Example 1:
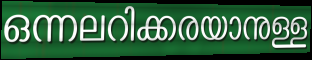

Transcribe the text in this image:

ഒന്നലറിക്കരയാനുള്ള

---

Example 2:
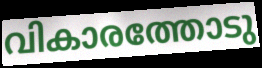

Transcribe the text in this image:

വികാരത്തോടു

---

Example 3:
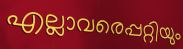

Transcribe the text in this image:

എല്ലാവരെപ്പറ്റിയും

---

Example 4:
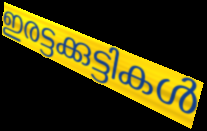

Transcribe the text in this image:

ഇരട്ടക്കുട്ടികൾ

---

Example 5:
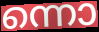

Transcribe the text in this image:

ന്നൊ